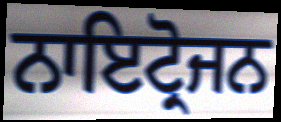
ਨਾਇਟ੍ਰੋਜਨ